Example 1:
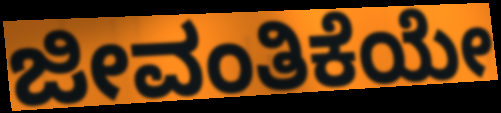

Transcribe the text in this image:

ಜೀವಂತಿಕೆಯೇ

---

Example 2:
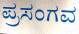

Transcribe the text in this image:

ಪ್ರಸಂಗವ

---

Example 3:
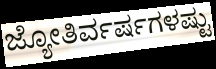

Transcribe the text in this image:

ಜ್ಯೋತಿರ್ವರ್ಷಗಳಷ್ಟು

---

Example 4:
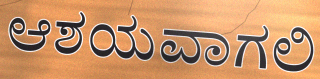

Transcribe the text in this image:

ಆಶಯವಾಗಲಿ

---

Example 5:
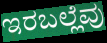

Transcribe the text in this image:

ಇರಬಲ್ಲೆವು